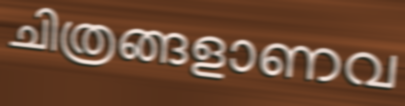
ചിത്രങ്ങളാണവ